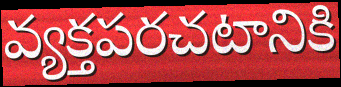
వ్యక్తపరచటానికి